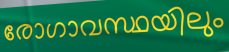
രോഗാവസ്ഥയിലും